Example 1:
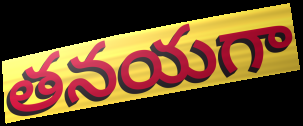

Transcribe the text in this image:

తనయగా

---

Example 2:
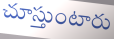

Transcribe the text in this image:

చూస్తుంటారు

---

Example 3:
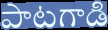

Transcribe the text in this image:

పాటగాడి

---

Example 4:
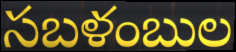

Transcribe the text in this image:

సబళంబుల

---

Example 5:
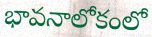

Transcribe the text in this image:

భావనాలోకంలో